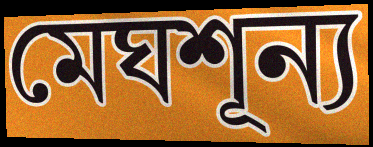
মেঘশূন্য